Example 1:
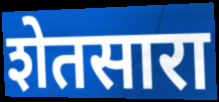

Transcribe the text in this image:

शेतसारा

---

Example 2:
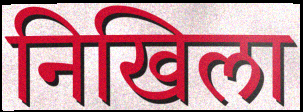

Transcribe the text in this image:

निखिला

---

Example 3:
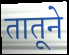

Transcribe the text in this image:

तातूने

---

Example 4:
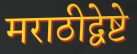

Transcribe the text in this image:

मराठीद्वेष्टे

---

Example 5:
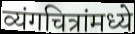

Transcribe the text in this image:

व्यंगचित्रांमध्ये